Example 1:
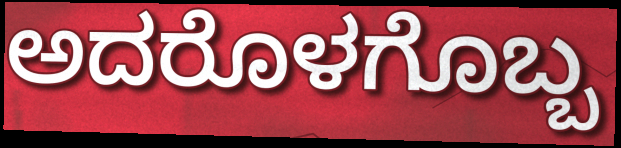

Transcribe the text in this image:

ಅದರೊಳಗೊಬ್ಬ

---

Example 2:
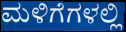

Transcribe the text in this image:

ಮಳಿಗೆಗಳಲ್ಲಿ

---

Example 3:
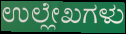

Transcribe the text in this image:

ಉಲ್ಲೇಖಗಳು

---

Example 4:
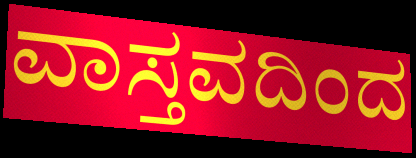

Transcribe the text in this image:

ವಾಸ್ತವದಿಂದ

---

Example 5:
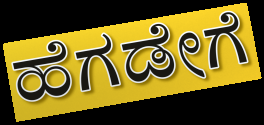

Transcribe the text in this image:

ಹೆಗಡೇಗೆ